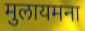
मुलायमना